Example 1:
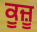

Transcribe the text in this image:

ਕੂਜ਼ੂ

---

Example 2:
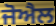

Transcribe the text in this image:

ਜੋਐਲ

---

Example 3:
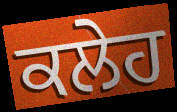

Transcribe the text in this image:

ਕਲੇਹ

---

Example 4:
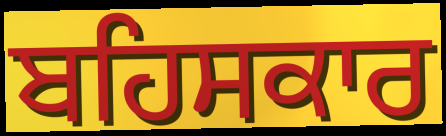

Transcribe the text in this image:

ਬਹਿਸਕਾਰ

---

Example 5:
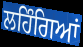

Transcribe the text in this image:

ਲਹਿੰਗਿਆਂ